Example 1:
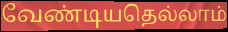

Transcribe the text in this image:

வேண்டியதெல்லாம்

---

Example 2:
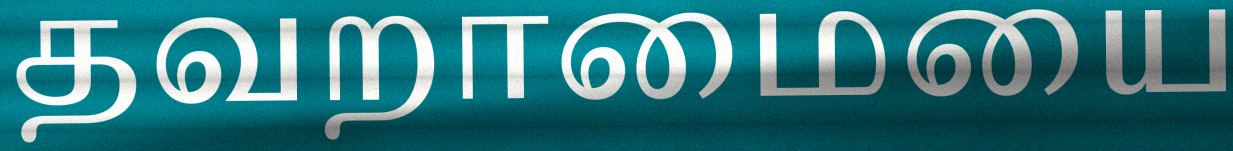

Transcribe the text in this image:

தவறாமையை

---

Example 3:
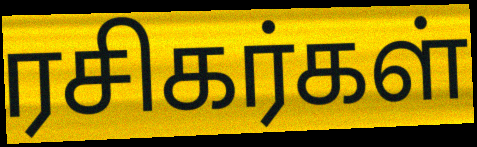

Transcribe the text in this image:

ரசிகர்கள்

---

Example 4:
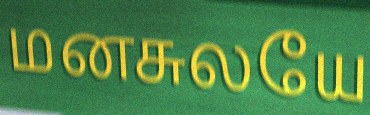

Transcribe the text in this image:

மனசுலயே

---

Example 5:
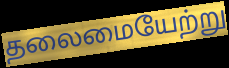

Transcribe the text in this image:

தலைமையேற்று